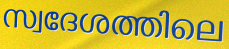
സ്വദേശത്തിലെ